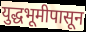
युद्धभूमीपासून